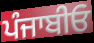
ਪੰਜਾਬੀਓ